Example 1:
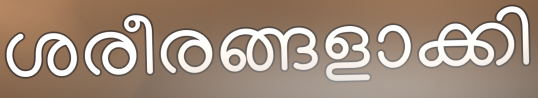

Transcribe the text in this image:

ശരീരങ്ങളാക്കി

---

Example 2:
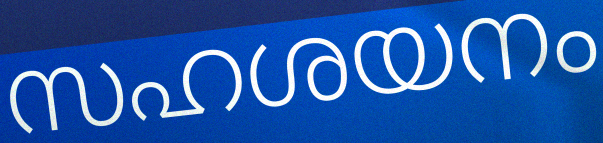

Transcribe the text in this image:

സഹശയനം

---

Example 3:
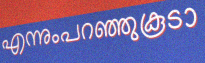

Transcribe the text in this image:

എന്നുംപറഞ്ഞുകൂടാ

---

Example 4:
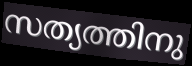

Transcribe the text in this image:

സത്യത്തിനു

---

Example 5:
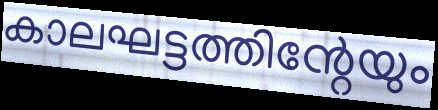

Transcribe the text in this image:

കാലഘട്ടത്തിന്റേയും